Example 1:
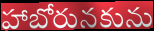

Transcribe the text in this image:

హాబోరునకును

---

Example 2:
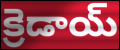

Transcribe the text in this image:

క్రెడాయ్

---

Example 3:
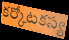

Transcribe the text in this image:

కర్కోటకస్య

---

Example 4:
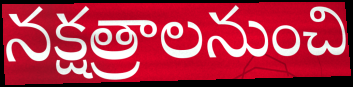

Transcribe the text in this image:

నక్షత్రాలనుంచి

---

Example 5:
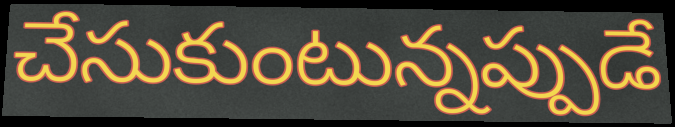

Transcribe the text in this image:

చేసుకుంటున్నప్పుడే